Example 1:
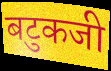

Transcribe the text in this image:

बटुकजी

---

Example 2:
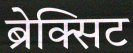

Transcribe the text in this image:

ब्रेक्सिट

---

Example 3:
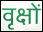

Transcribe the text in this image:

वृक्षों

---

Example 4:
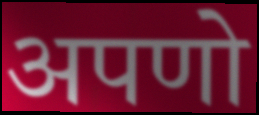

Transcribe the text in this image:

अपणो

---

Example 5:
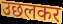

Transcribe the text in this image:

उछलकर